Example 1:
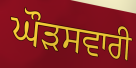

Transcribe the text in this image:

ਘੌੜਸਵਾਰੀ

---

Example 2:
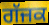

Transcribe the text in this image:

ਗੱਜਕ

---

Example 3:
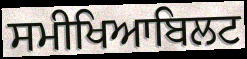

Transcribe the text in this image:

ਸਮੀਖਿਆਬਿਲਟ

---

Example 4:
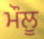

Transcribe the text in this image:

ਮੌਲੂ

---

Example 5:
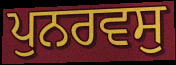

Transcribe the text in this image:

ਪੁਨਰਵਸੁ